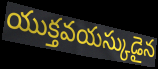
యుక్తవయస్కుడైన